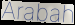
Arabah